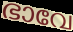
ഭാവേ